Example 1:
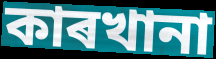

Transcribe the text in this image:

কাৰখানা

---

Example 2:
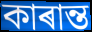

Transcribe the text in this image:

কাৰান্ত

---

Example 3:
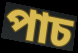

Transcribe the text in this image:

পাচ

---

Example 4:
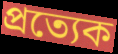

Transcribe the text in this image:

প্ৰত্যেক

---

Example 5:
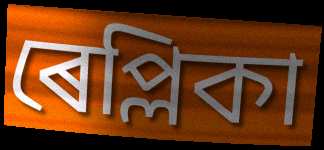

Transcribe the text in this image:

ৰেপ্লিকা